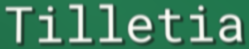
Tilletia